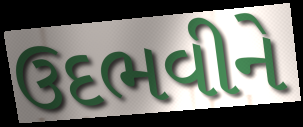
ઉદભવીને